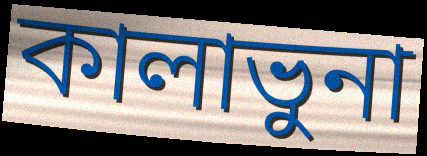
কালাভুনা